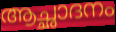
ആച്ഛാദനം